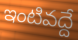
ఇంటివద్దే